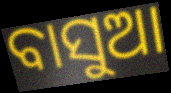
ବାସୁଆ